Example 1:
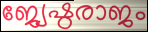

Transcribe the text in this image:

ജ്യേഷ്ഠരാജം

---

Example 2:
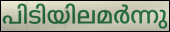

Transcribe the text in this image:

പിടിയിലമർന്നു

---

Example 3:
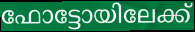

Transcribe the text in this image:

ഫോട്ടോയിലേക്ക്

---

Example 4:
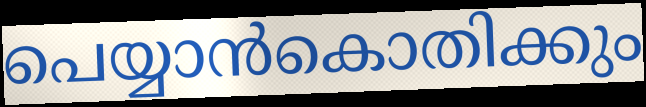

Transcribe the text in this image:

പെയ്യാൻകൊതിക്കും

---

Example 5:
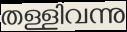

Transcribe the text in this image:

തള്ളിവന്നു